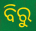
ବିରୁ